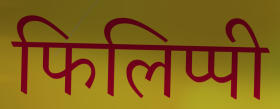
फिलिप्पी